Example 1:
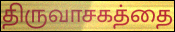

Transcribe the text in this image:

திருவாசகத்தை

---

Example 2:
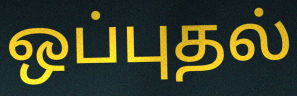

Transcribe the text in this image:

ஒப்புதல்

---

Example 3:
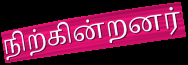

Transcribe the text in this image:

நிற்கின்றனர்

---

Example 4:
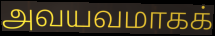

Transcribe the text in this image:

அவயவமாகக்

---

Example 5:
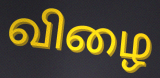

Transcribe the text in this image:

விழை